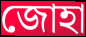
জোহা